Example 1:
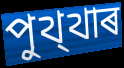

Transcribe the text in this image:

পুথ্থাৰ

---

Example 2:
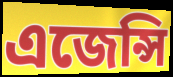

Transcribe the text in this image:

এজেন্সি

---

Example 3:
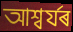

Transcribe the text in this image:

আশ্বৰ্যৰ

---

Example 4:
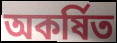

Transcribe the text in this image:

অকৰ্ষিত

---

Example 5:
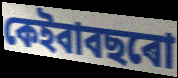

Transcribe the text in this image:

কেইবাবছৰো